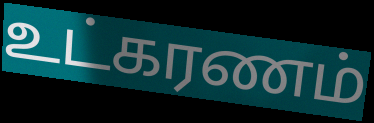
உட்கரணம்